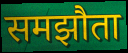
समझौता